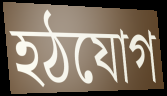
হঠযোগ